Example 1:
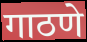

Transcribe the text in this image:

गाठणे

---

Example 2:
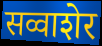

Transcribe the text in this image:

सव्वाशेर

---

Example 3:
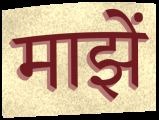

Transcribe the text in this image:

माझें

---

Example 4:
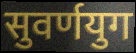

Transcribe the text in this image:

सुवर्णयुग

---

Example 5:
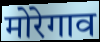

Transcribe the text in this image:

मोरेगाव